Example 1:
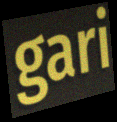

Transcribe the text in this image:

gari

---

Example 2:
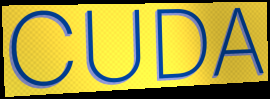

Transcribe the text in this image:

CUDA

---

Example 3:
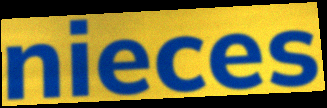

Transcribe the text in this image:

nieces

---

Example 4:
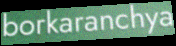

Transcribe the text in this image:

borkaranchya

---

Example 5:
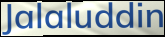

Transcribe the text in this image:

Jalaluddin